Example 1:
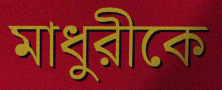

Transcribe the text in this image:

মাধুরীকে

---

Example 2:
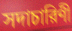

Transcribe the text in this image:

সদাচারিণী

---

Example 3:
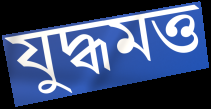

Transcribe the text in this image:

যুদ্ধমত্ত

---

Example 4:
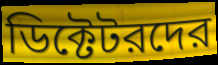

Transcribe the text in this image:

ডিক্টেটরদের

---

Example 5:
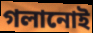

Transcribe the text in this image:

গলানোই